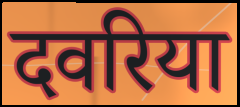
दवरिया